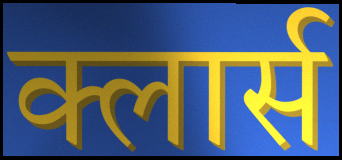
क्लार्स